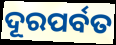
ଦୂରପର୍ବତ